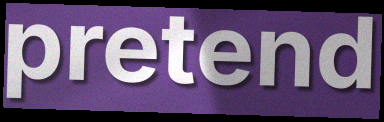
pretend